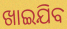
ଖାଇଯିବ